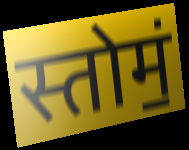
स्तोमं॒